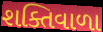
શક્તિવાળા